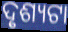
ଦୃଶ୍ୟଟା